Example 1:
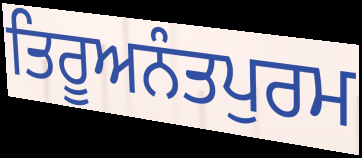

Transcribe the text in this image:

ਤਿਰੂਅਨੰਤਪੁਰਮ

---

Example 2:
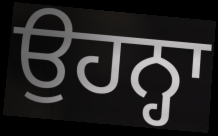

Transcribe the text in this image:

ਉਹਨ੍ਹਾ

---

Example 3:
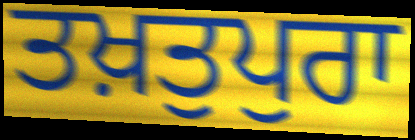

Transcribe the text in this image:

ਤਖ਼ਤੁਪੁਰਾ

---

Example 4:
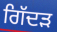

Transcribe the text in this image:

ਗਿੱਦਡ਼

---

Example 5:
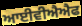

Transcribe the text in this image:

ਆਈਵੀਐਐਫ